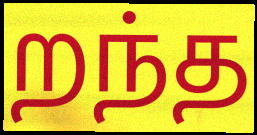
றந்த